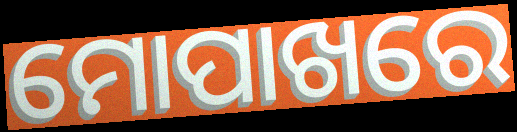
ମୋପାଖରେ